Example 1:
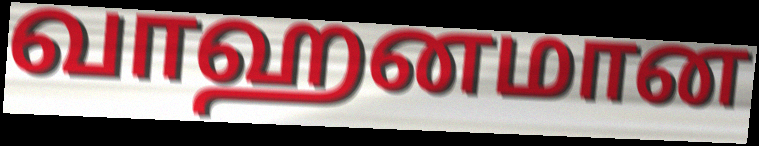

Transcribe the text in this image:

வாஹனமான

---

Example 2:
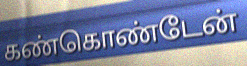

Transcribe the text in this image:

கண்கொண்டேன்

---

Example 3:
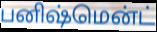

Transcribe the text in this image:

பனிஷ்மென்ட்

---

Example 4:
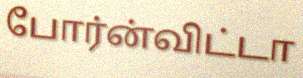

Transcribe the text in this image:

போர்ன்விட்டா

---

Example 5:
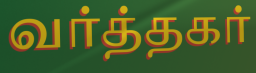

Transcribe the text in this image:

வர்த்தகர்